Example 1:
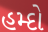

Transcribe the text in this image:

હમ્દો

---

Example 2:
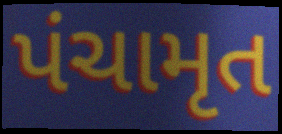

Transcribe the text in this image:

પંચામૃત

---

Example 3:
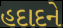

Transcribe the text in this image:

હદાદને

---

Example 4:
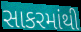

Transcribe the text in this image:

સાકરમાંથી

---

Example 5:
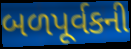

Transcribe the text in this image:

બળપૂર્વકની